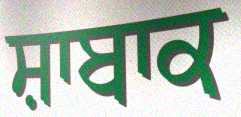
ਸ਼ਾਬਾਕ